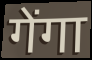
गेंगा